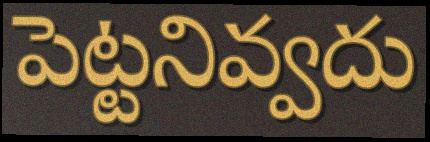
పెట్టనివ్వదు